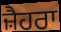
ਜ਼ੈਹਰਾ